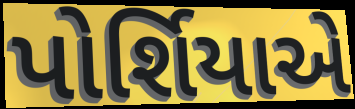
પોર્શિયાએ